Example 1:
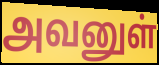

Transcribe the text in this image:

அவனுள்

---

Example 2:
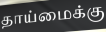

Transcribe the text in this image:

தாய்மைக்கு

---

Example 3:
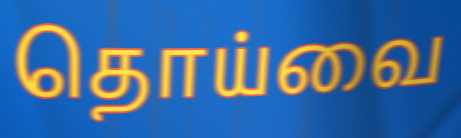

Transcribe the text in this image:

தொய்வை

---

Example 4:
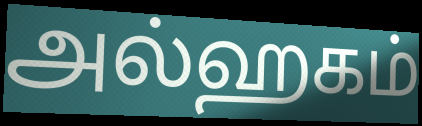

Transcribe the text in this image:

அல்ஹகம்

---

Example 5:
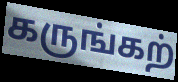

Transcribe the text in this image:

கருங்கற்